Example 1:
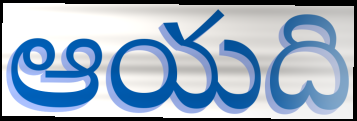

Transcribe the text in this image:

ఆయది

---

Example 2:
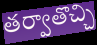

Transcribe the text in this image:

తర్వాతొచ్చి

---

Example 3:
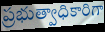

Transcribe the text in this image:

ప్రభుత్వాధికారిగా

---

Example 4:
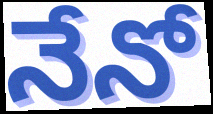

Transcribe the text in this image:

నేనో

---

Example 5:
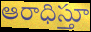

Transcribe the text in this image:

ఆరాధిస్తూ